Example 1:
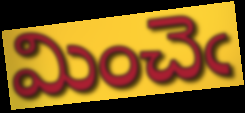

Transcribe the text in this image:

మించెఁ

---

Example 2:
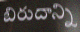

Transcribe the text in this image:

బిరుదాన్ని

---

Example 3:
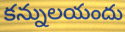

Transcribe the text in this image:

కన్నులయందు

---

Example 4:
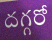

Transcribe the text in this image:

దగ్గరో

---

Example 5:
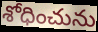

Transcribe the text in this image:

శోధించును